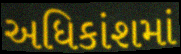
અધિકાંશમાં